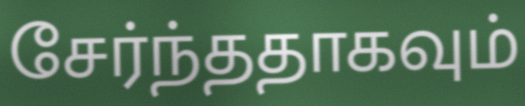
சேர்ந்ததாகவும்